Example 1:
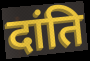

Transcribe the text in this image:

दांति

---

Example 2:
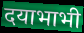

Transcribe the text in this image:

दयाभाभी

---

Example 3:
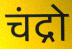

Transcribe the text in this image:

चंद्रो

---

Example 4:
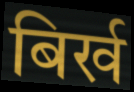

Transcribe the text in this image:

बिर्ख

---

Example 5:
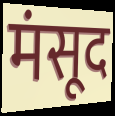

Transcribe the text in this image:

मंसूद